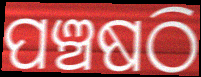
ପଞ୍ଚଷଠି